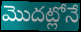
మొదట్లోనే